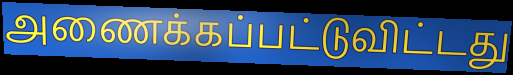
அணைக்கப்பட்டுவிட்டது